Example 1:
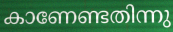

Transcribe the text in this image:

കാണേണ്ടതിന്നു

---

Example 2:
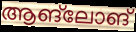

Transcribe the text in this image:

ആങ്‌ലോങ്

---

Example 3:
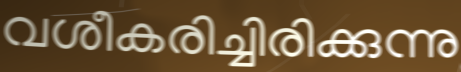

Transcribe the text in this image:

വശീകരിച്ചിരിക്കുന്നു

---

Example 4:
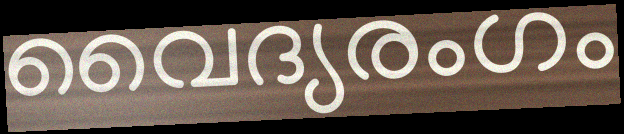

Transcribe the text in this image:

വൈദ്യരംഗം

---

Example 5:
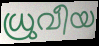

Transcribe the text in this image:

ധ്രുവീയ